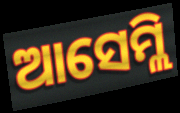
ଆସେମ୍ଲି